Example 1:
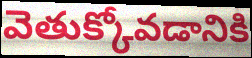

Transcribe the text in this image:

వెతుక్కోవడానికి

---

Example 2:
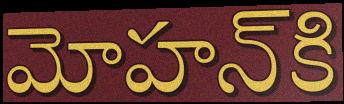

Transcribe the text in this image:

మోహన్‌కి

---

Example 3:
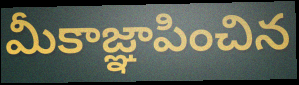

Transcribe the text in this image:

మీకాజ్ఞాపించిన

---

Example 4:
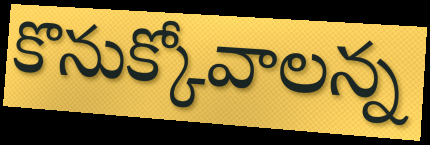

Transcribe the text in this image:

కొనుక్కోవాలన్న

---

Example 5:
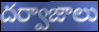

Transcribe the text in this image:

దర్వాజాలు